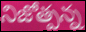
నిజోత్పన్న